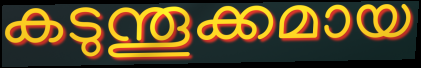
കടുന്തൂക്കമായ